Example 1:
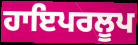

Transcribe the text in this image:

ਹਾਇਪਰਲੂਪ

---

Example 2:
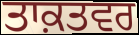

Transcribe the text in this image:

ਤਾਕ਼ਤਵਰ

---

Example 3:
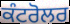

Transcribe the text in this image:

ਕੰਟਰੋਲਰ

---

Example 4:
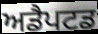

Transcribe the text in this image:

ਅਡੈਪਟਡ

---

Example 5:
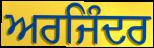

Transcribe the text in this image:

ਅਰਜਿੰਦਰ